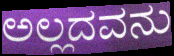
ಅಲ್ಲದವನು